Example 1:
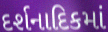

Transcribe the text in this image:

દર્શનાદિકમાં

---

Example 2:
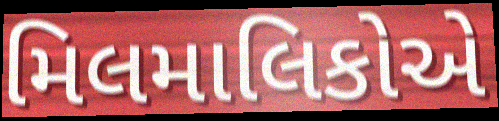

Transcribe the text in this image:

મિલમાલિકોએ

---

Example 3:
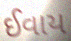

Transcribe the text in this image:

ઈવાય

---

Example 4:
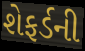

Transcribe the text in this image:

શેફર્ડની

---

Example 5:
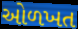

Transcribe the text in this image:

ઓળખત